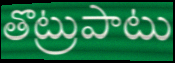
తొట్రుపాటు